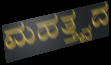
ಮಹತ್ತ್ವದ